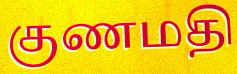
குணமதி